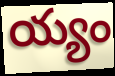
య్యం